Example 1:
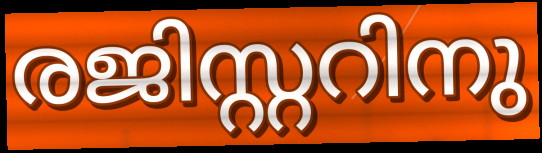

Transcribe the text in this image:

രജിസ്റ്ററിനു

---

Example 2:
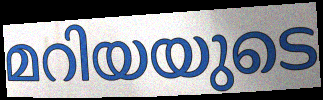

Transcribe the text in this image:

മറിയയുടെ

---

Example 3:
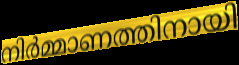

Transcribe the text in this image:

നിർമ്മാണത്തിനായി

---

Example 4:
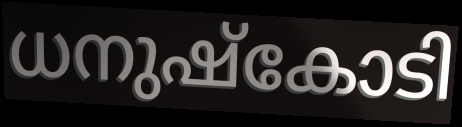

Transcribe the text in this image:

ധനുഷ്കോടി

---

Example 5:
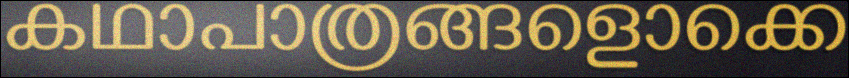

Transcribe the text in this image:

കഥാപാത്രങ്ങളൊക്കെ